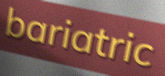
bariatric